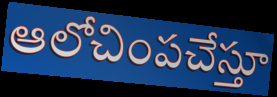
ఆలోచింపచేస్తూ